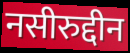
नसीरुद्दीन